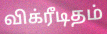
விக்ரீடிதம்